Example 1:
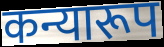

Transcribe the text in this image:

कन्यारूप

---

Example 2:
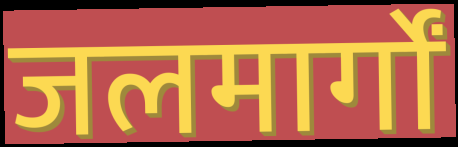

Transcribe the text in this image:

जलमार्गों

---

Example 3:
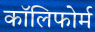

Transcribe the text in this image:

कॉलिफोर्म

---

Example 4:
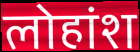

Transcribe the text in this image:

लोहांश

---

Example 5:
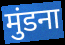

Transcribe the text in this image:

मुंडना